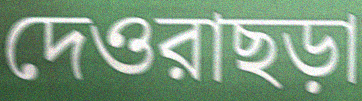
দেওরাছড়া